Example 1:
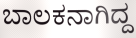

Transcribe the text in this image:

ಬಾಲಕನಾಗಿದ್ದ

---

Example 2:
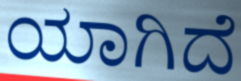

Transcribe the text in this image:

ಯಾಗಿದೆ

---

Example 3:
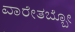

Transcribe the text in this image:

ವಾರೇತಬ್ಬೋ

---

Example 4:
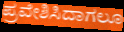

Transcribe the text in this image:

ಪ್ರವೇಶಿಸಿದಾಗಲೂ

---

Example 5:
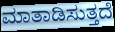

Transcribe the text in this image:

ಮಾತಾಡಿಸುತ್ತದೆ